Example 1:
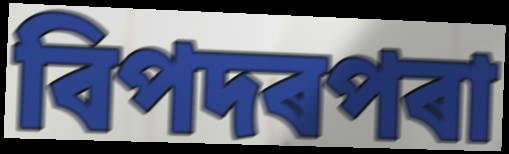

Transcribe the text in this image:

বিপদৰপৰা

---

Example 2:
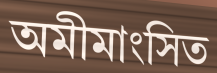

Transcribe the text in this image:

অমীমাংসিত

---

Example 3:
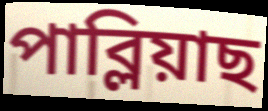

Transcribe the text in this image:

পাব্লিয়াছ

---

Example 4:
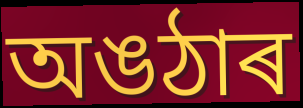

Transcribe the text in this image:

অঙঠাৰ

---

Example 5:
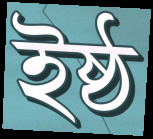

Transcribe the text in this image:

ইষ্ঠ